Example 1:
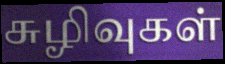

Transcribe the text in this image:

சுழிவுகள்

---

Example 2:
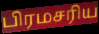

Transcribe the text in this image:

பிரமசரிய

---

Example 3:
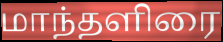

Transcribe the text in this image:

மாந்தளிரை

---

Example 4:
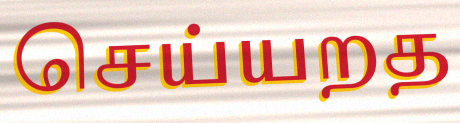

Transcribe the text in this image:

செய்யறத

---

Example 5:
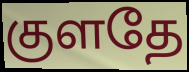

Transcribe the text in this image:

குளதே